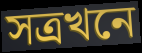
সত্ৰখনে